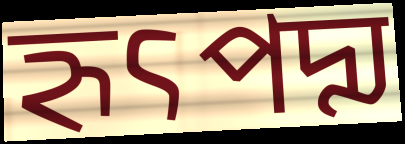
হৃৎপদ্ম